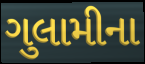
ગુલામીના